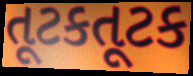
તૂટકતૂટક